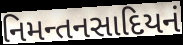
નિમન્તનસાદિયનં